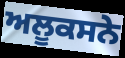
ਅਲੂਕਸਨੇ